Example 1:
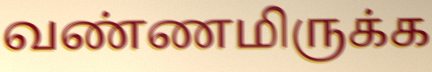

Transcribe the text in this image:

வண்ணமிருக்க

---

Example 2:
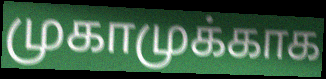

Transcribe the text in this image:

முகாமுக்காக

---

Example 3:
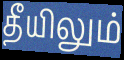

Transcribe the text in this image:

தீயிலும்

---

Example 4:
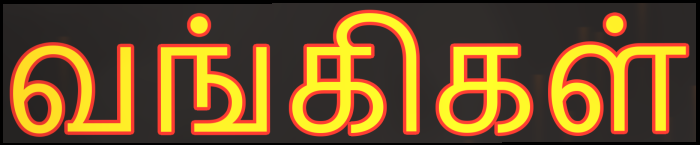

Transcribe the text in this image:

வங்கிகள்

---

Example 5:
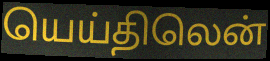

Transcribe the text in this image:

யெய்திலென்